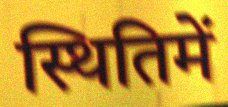
स्थितिमें